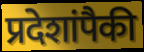
प्रदेशांपैकी